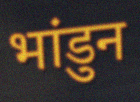
भांडुन